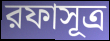
রফাসূত্র